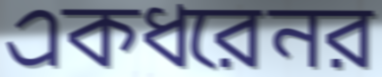
একধরেনর